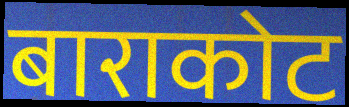
बाराकोट